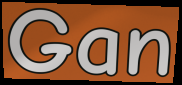
Gan